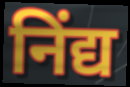
निंद्य